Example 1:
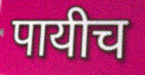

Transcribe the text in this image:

पायीच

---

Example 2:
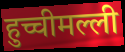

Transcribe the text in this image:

हुच्चीमल्ली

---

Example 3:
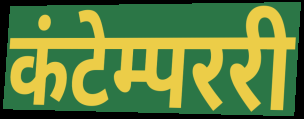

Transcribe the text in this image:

कंटेम्पररी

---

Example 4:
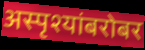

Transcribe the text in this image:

अस्पृश्यांबरोबर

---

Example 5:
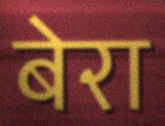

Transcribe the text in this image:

बेरा